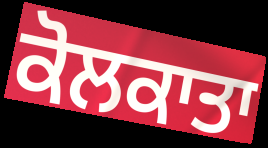
ਕੋਲਕਾਤਾ